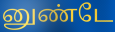
னுண்டே